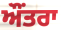
ਔਂਤਰਾ